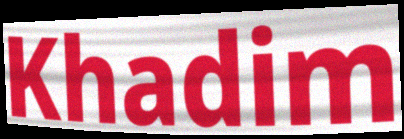
Khadim